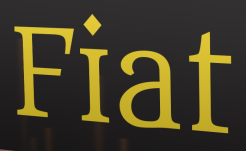
Fiat